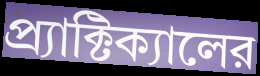
প্র্যাক্টিক্যালের